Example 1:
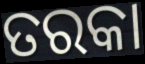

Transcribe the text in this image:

ତରକା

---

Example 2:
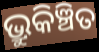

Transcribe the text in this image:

ଭ୍ରୁକିଞ୍ଚିତ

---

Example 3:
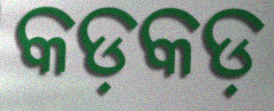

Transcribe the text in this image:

କଡ଼କଡ଼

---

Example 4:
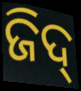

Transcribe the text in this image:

ଜିଦ୍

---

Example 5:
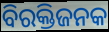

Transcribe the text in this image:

ବିରକ୍ତିଜନକ